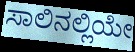
ಸಾಲಿನಲ್ಲಿಯೇ